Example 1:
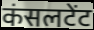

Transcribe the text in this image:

कंसलटेंट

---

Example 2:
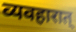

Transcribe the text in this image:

व्यवहारात्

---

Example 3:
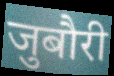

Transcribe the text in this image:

जुबौरी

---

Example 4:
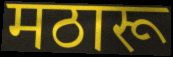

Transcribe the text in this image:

मठारू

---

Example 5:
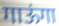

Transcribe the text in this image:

गाऊंगा